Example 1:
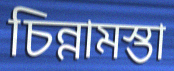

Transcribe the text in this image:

চিন্নামস্তা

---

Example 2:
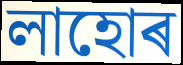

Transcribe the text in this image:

লাহোৰ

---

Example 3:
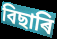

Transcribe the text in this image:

বিছাৰি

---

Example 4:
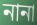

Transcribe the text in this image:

নানা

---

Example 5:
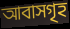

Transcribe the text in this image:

আবাসগৃহ